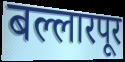
बल्लारपूर